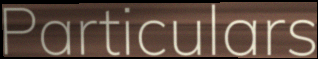
Particulars